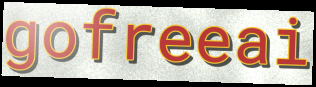
gofreeai